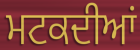
ਮਟਕਦੀਆਂ